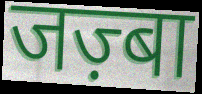
जज़्बा